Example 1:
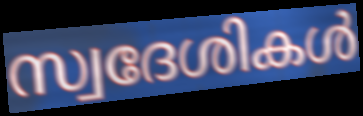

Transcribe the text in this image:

സ്വദേശികൾ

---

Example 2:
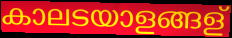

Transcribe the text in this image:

കാലടയാളങ്ങള്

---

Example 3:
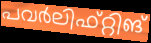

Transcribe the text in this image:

പവർലിഫ്റ്റിങ്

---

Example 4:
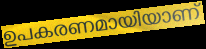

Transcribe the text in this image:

ഉപകരണമായിയാണ്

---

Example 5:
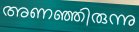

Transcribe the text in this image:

അണഞ്ഞിരുന്നു